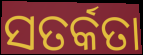
ସତର୍କତା